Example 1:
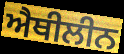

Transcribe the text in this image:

ਐਥੀਲੀਨ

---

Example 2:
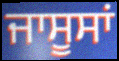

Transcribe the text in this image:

ਜਾਸੂਸਾਂ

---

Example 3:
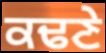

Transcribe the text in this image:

ਕਢਣੇ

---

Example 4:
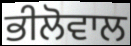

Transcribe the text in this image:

ਭੀਲੋਵਾਲ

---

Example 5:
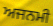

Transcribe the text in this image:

ਅਜਨਮੀ